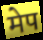
मेप